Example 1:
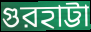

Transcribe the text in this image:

গুরহাট্টা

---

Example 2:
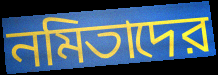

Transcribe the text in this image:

নমিতাদের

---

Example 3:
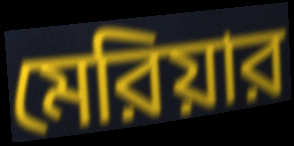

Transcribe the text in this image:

মেরিয়ার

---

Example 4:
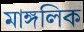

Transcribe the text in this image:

মাঙ্গলিক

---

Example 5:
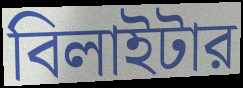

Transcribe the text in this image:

বিলাইটার